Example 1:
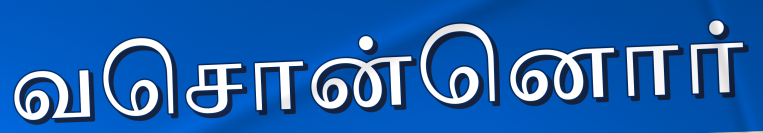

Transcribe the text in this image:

வசொன்னொர்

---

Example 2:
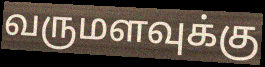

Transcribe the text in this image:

வருமளவுக்கு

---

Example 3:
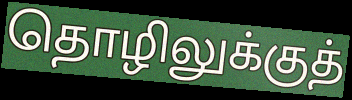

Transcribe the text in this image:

தொழிலுக்குத்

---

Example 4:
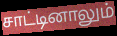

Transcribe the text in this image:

சாட்டினாலும்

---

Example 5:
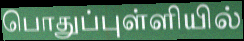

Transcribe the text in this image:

பொதுப்புள்ளியில்